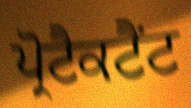
ਪ੍ਰੋਟੈਕਟੈਂਟ